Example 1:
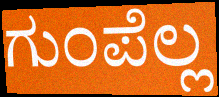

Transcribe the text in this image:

ಗುಂಪೆಲ್ಲ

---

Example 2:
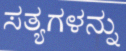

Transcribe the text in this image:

ಸತ್ಯಗಳನ್ನು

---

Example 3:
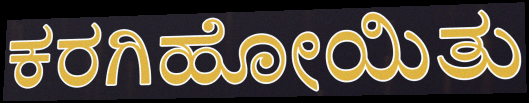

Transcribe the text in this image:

ಕರಗಿಹೋಯಿತು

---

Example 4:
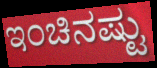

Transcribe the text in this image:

ಇಂಚಿನಷ್ಟು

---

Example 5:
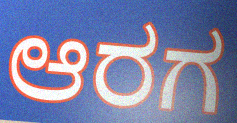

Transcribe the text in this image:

ಆರಗ